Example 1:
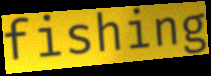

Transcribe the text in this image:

fishing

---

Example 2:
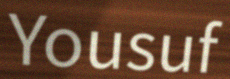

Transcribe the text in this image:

Yousuf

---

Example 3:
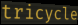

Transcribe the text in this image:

tricycle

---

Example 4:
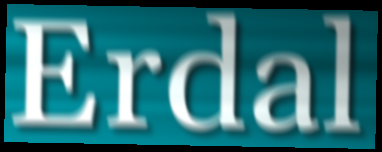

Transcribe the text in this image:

Erdal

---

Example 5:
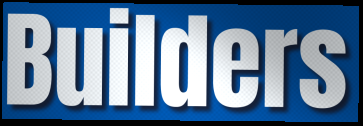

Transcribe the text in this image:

Builders